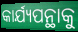
କାର୍ଯ୍ୟପନ୍ଥାକୁ